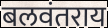
बलवंतराय